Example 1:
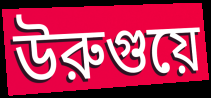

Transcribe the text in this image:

উরুগুয়ে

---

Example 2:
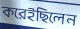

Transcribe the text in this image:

করেইছিলেন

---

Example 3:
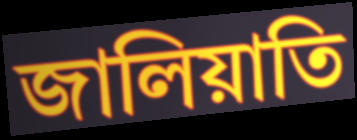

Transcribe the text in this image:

জালিয়াতি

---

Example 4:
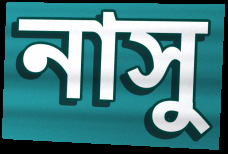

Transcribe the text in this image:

নাসু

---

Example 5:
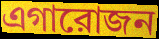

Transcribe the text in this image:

এগারোজন